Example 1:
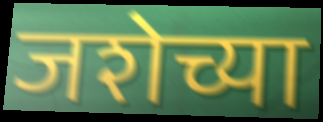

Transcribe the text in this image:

जशेच्या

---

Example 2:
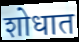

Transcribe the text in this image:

शोधात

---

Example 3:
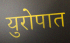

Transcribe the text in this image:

युरोपात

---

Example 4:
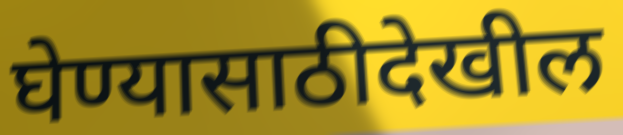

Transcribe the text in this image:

घेण्यासाठीदेखील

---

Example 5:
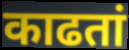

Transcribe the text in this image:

काढतां